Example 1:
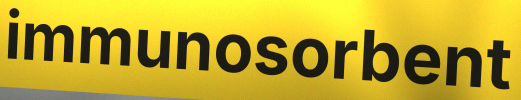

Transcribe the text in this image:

immunosorbent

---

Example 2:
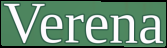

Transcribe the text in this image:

Verena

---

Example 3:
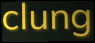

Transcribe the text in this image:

clung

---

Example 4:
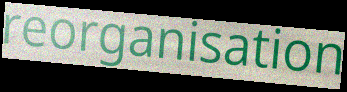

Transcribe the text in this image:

reorganisation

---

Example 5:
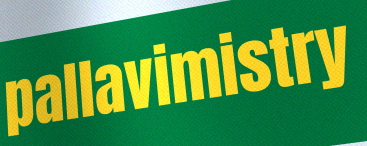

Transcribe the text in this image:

pallavimistry